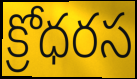
క్రోధరస